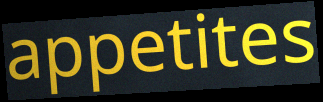
appetites